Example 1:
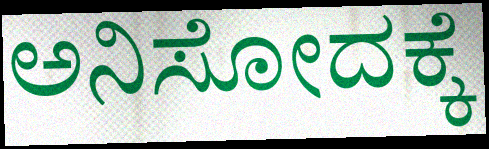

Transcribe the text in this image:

ಅನಿಸೋದಕ್ಕೆ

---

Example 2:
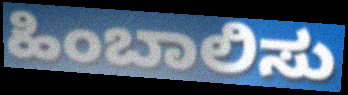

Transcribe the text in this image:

ಹಿಂಬಾಲಿಸು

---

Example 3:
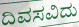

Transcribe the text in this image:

ದಿವಸವಿದು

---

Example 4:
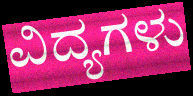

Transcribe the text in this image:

ವಿದ್ಯಗಳು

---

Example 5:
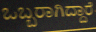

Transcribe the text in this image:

ಒಬ್ಬರಾಗಿದ್ದಾರೆ